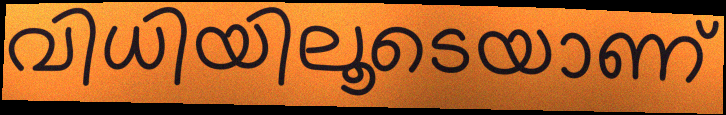
വിധിയിലൂടെയാണ്